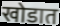
खोडात